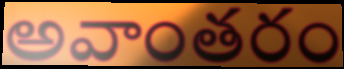
అవాంతరం